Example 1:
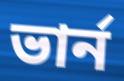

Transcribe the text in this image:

ভার্ন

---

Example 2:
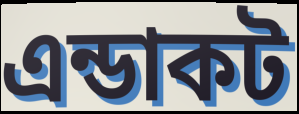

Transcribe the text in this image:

এন্ডাকট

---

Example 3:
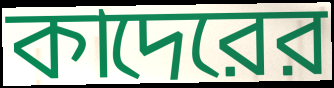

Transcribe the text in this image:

কাদেরের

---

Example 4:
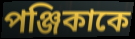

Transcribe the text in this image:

পঞ্জিকাকে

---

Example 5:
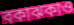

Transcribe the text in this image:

বকাঝকাও